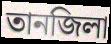
তানজিলা